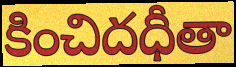
కించిదధీతా